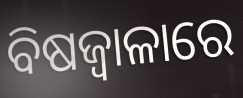
ବିଷଜ୍ୱାଳାରେ